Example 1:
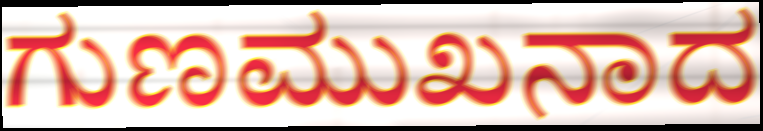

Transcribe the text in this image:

ಗುಣಮುಖನಾದ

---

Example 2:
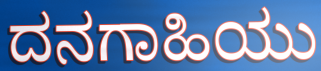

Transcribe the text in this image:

ದನಗಾಹಿಯು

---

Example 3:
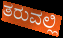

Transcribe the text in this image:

ತರುವಲ್ಲಿ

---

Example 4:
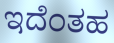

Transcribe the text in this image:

ಇದೆಂತಹ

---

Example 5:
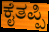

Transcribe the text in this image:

ಕೈತಪ್ಪಿ